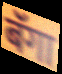
बॅगा